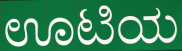
ಊಟಿಯ